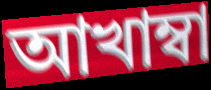
আখাম্বা